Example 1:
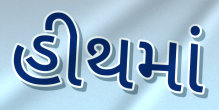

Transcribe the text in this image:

હીથમાં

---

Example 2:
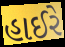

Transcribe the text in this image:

હાઈરે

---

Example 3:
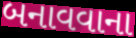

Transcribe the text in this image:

બનાવવાના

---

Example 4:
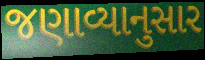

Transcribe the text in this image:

જણાવ્યાનુસાર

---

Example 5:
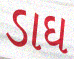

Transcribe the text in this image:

ડાઘ